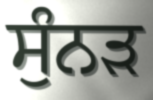
ਸੁੰਨੜ